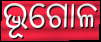
ଭୂଗୋଳ